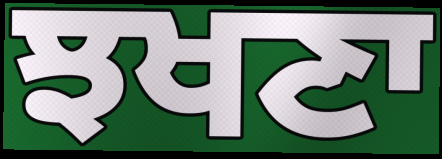
ਝਖਣਾ